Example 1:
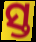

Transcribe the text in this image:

ସ୍ତ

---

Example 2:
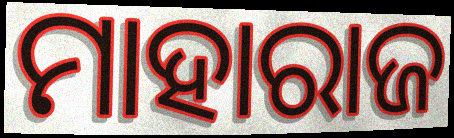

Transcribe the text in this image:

ମାହାରାଜ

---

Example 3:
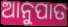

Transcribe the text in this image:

ଆନୁପାତ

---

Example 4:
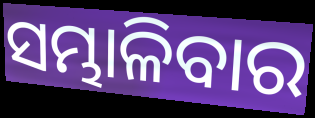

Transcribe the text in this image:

ସମ୍ଭାଳିବାର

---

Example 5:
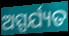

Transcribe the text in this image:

ଅସ୍ପର୍ଯ୍ୟତ